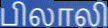
பிலாலி